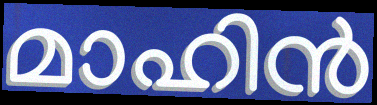
മാഹിൻ